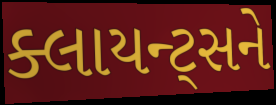
ક્લાયન્ટ્સને